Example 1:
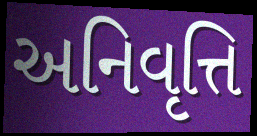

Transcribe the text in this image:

અનિવૃત્તિ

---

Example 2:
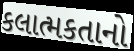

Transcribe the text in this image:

કલાત્મકતાનો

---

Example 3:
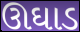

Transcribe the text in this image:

ઊઘાડ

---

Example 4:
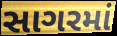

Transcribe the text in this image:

સાગરમાં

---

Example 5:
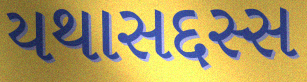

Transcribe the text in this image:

યથાસદ્દસ્સ